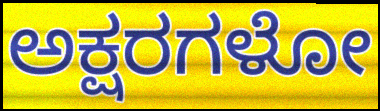
ಅಕ್ಷರಗಳೋ